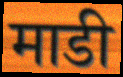
माडी